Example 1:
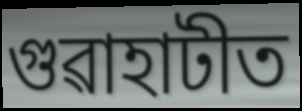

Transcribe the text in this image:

গুৱাহাটীত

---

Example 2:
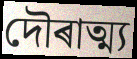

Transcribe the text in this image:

দৌৰাত্ম্য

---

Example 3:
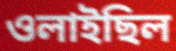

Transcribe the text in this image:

ওলাইছিল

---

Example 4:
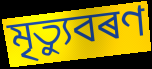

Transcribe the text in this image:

মৃত্যুবৰণ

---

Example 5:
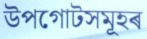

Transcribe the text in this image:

উপগোটসমূহৰ